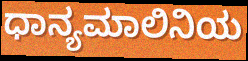
ಧಾನ್ಯಮಾಲಿನಿಯ